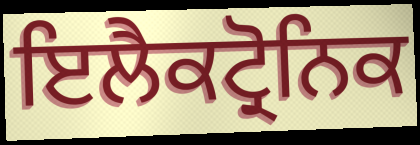
ਇਲੈਕਟ੍ਰੋਨਿਕ